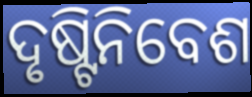
ଦୃଷ୍ଟିନିବେଶ